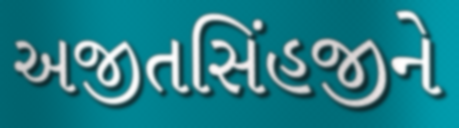
અજીતસિંહજીને